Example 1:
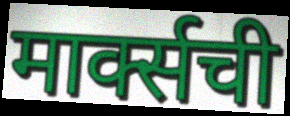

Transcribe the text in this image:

मार्क्सची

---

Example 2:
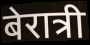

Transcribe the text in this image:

बेरात्री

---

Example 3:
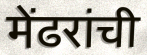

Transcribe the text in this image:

मेंढरांची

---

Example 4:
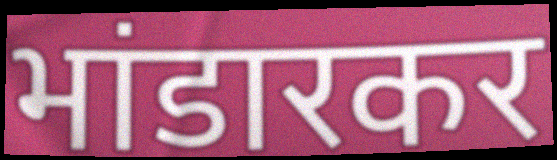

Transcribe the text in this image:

भांडारकर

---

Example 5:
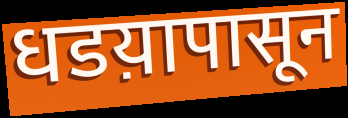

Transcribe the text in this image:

धडय़ापासून